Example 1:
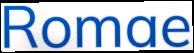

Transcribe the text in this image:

Romae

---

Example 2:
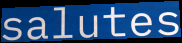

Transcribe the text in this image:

salutes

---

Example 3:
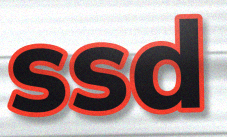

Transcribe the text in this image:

ssd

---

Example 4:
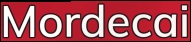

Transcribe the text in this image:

Mordecai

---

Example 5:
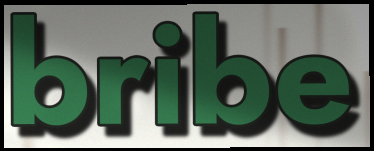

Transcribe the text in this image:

bribe